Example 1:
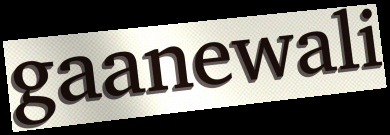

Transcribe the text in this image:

gaanewali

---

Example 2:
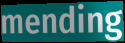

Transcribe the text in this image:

mending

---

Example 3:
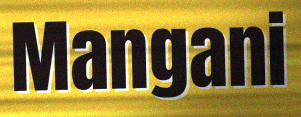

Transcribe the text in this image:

Mangani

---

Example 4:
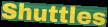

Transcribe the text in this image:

Shuttles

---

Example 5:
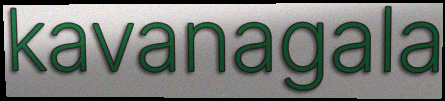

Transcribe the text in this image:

kavanagala